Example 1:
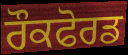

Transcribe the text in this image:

ਰੌਕਫੋਰਡ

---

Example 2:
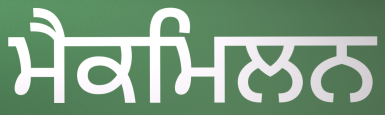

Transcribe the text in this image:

ਮੈਕਮਿਲਨ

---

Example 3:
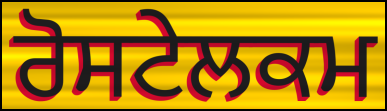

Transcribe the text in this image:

ਰੋਸਟੇਲਕਮ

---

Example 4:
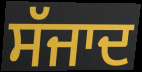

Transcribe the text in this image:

ਸੱਜਾਦ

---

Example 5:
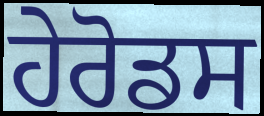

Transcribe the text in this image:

ਹੇਰੋਡਸ